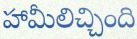
హామీలిచ్చింది